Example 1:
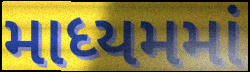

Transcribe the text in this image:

માધ્યમમાં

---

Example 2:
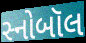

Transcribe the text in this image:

સ્નોબૉલ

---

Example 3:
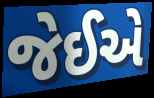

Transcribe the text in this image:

જેઈએ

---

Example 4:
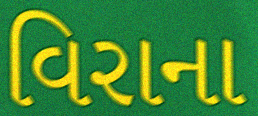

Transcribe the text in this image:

વિરાના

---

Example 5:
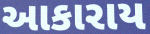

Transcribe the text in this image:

આકારાય